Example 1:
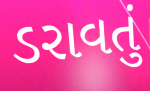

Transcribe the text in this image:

ડરાવતું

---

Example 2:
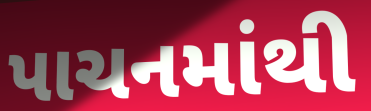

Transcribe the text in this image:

પાચનમાંથી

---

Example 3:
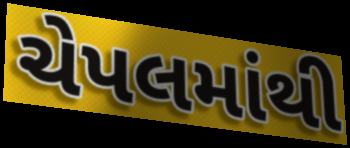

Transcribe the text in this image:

ચેપલમાંથી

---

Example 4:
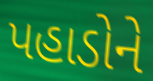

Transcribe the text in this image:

પહાડોને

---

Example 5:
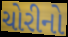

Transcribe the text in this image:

ચોરીનો